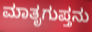
ಮಾತೃಗುಪ್ತನು